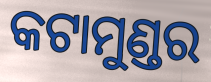
କଟାମୁଣ୍ଡର